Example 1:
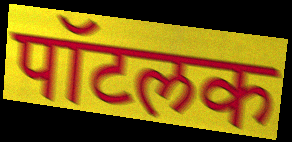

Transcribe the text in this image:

पॉटलक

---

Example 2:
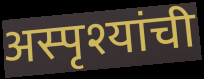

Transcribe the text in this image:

अस्पृश्यांची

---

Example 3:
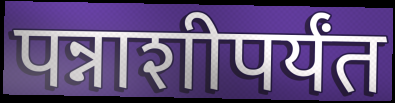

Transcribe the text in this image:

पन्नाशीपर्यंत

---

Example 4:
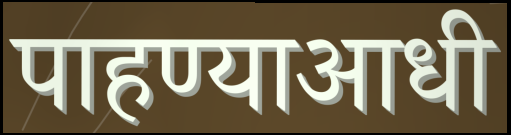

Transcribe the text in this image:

पाहण्याआधी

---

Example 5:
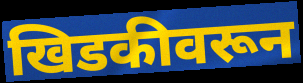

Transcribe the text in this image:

खिडकीवरून